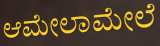
ಆಮೇಲಾಮೇಲೆ